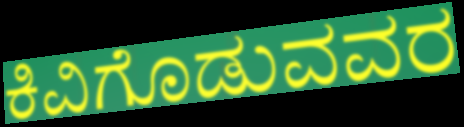
ಕಿವಿಗೊಡುವವರ